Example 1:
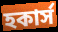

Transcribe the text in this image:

হকার্স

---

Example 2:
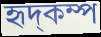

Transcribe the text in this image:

হৃদ্কম্প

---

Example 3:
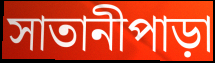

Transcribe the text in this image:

সাতানীপাড়া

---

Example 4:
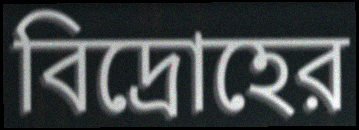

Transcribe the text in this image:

বিদ্রোহের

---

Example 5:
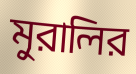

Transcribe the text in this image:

মুরালির